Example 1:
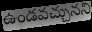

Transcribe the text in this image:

ఉండవచ్చునని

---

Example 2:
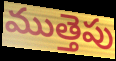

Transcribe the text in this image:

ముత్తెపు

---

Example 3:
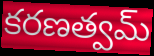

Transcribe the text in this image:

కరణత్వమ్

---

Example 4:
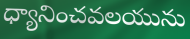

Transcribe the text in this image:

ధ్యానించవలయును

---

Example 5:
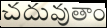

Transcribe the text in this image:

చదువుతాం